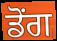
ਡੋਂਗ